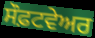
ਸੌਫ਼ਟਵੇਅਰ